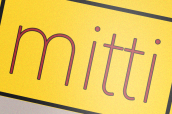
mitti